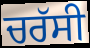
ਚਰੱਸੀ